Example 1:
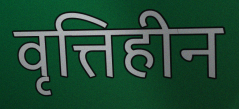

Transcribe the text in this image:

वृत्तिहीन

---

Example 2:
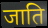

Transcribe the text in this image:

जाति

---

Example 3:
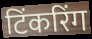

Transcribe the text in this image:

टिंकरिंग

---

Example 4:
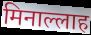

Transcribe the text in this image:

मिनाल्लाह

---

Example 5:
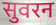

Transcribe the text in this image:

सुवरन